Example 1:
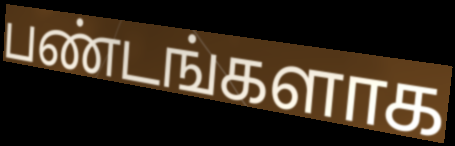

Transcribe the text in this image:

பண்டங்களாக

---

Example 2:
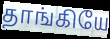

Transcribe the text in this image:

தாங்கியே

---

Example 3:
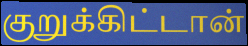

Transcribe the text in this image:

குறுக்கிட்டான்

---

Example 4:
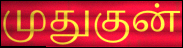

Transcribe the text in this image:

முதுகுன்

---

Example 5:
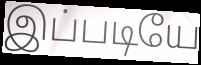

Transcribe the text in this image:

இப்படியே